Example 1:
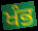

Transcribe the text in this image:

ਖੰਭ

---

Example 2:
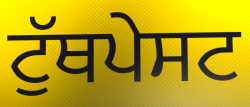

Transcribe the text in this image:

ਟੁੱਥਪੇਸਟ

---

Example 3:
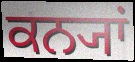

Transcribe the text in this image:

ਕਨ੍ਯਾਂ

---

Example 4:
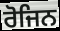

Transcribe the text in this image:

ਰੋਜਿਨ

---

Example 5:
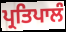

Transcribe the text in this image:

ਪ੍ਰਤਿਪਾਲੰ